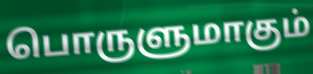
பொருளுமாகும்